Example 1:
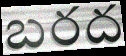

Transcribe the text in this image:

బరద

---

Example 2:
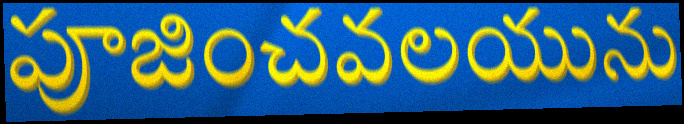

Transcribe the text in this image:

పూజించవలయును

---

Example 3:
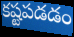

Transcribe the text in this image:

కష్టపడడం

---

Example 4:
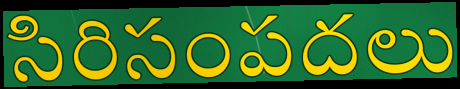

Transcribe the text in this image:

సిరిసంపదలు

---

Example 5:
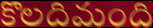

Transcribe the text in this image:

కొలదిమంది